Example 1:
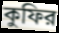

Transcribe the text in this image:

কুফির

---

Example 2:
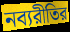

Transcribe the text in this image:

নব্যরীতির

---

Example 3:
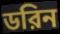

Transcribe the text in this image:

ডরিন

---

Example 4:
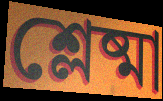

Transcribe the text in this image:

শ্লেষ্মা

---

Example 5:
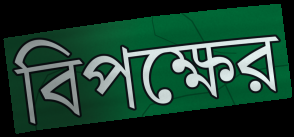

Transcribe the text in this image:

বিপক্ষের